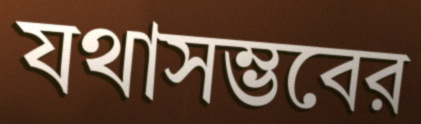
যথাসম্ভবের